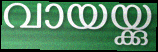
വായയ്ക്കു